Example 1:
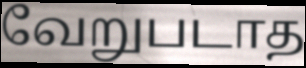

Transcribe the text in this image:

வேறுபடாத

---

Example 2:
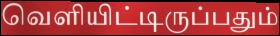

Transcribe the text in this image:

வெளியிட்டிருப்பதும்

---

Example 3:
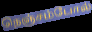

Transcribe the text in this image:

நெஞ்சம்போல்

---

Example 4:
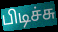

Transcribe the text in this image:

பிடிச்சு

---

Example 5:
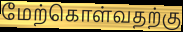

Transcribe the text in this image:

மேற்கொள்வதற்கு